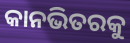
କାନଭିତରକୁ